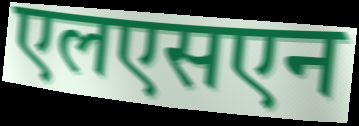
एलएसएन